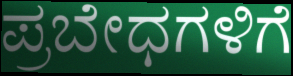
ಪ್ರಬೇಧಗಳಿಗೆ